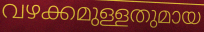
വഴക്കമുള്ളതുമായ